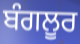
ਬੰਗਲੂਰ